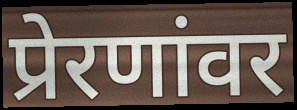
प्रेरणांवर